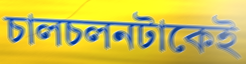
চালচলনটাকেই